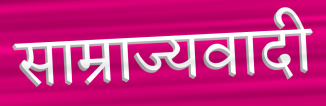
साम्राज्यवादी